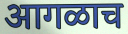
आगळाच